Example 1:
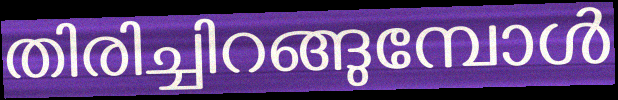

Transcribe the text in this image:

തിരിച്ചിറങ്ങുമ്പോൾ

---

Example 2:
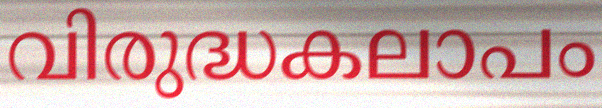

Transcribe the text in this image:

വിരുദ്ധകലാപം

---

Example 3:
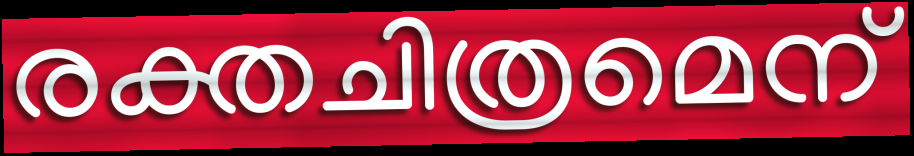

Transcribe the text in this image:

രക്തചിത്രമെന്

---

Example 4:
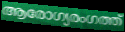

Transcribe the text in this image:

ആരോഗ്യരംഗത്ത്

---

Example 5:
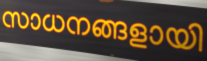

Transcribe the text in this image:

സാധനങ്ങളായി